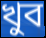
খুব